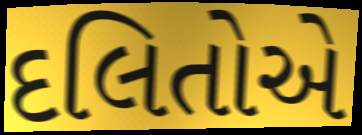
દલિતોએ